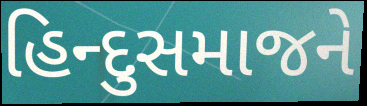
હિન્દુસમાજને